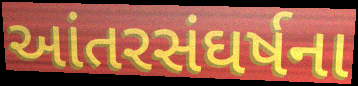
આંતરસંઘર્ષના